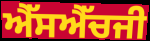
ਐੱਸਐੱਚਜੀ